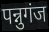
पन्नुगंज